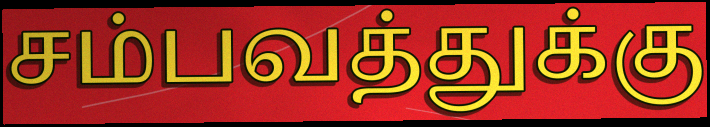
சம்பவத்துக்கு